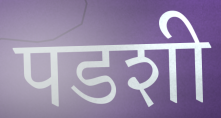
पडशी